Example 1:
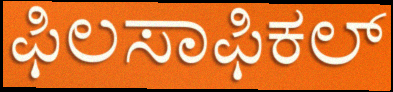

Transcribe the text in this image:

ಫಿಲಸಾಫಿಕಲ್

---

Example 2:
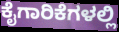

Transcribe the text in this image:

ಕೈಗಾರಿಕೆಗಳಲ್ಲಿ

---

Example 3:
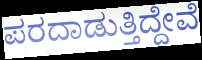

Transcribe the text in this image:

ಪರದಾಡುತ್ತಿದ್ದೇವೆ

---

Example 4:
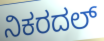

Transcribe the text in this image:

ನಿಕರದಲ್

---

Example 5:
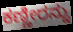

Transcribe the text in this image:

ಕಣ್ಣೀರನ್ನು